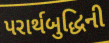
પરાર્થબુદ્ધિની